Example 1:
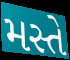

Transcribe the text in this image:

મસ્તે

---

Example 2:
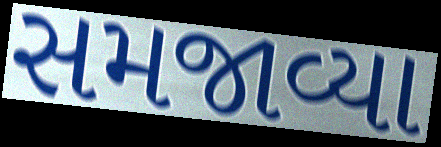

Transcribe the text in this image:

સમજાવ્યા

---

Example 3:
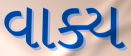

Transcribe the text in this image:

વાક્ય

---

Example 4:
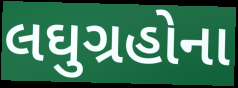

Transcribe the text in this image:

લઘુગ્રહોના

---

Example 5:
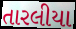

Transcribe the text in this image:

તારલીયા